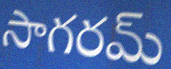
సాగరమ్